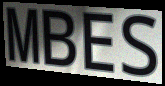
MBES